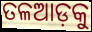
ତଳଆଡ଼କୁ